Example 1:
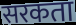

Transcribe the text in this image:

सरकता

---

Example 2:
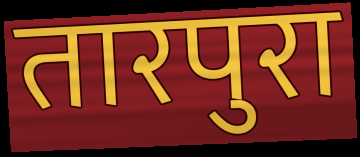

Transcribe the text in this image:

तारपुरा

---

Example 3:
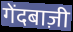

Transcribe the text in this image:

गेंदबाज़ी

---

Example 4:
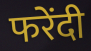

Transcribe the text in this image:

फरेंदी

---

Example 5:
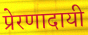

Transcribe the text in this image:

प्रेरणादायी